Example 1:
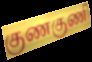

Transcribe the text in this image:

குணகுணி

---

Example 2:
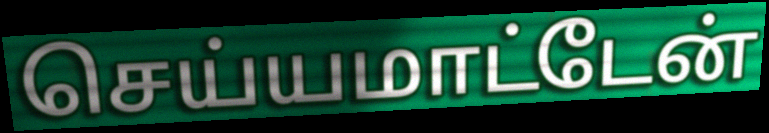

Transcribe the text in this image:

செய்யமாட்டேன்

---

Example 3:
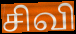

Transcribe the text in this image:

சிவி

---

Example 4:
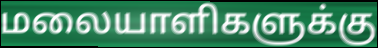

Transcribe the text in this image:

மலையாளிகளுக்கு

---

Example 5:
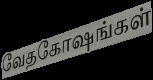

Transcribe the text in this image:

வேதகோஷங்கள்